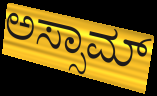
ಅಸ್ಸಾಮ್